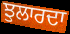
ਝੁਲਾਰਦਾ